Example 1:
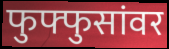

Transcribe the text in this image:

फुफ्फुसांवर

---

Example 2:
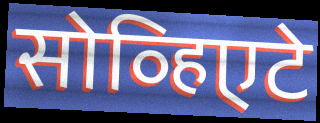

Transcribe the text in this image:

सोव्हिएटे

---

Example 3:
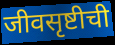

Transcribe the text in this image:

जीवसृष्टीची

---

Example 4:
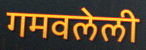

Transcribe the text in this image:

गमवलेली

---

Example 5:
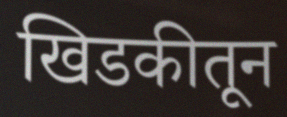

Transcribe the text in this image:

खिडकीतून